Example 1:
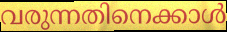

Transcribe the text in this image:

വരുന്നതിനെക്കാൾ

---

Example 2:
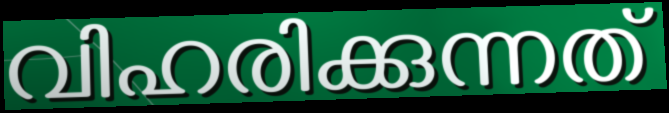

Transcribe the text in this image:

വിഹരിക്കുന്നത്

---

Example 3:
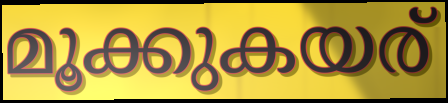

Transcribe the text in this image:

മൂക്കുകയര്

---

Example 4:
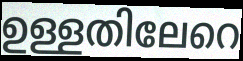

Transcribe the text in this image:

ഉള്ളതിലേറെ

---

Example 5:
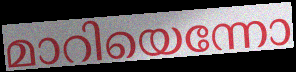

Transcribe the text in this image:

മാറിയെന്നോ